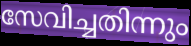
സേവിച്ചതിന്നും